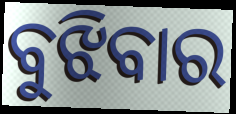
ବୁଝିବାର